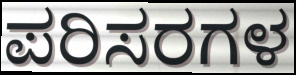
ಪರಿಸರಗಳ